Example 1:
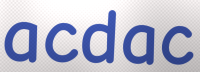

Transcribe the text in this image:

acdac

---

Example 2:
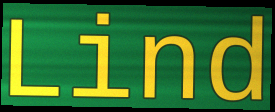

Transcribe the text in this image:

Lind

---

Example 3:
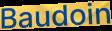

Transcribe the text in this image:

Baudoin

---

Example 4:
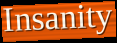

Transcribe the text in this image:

Insanity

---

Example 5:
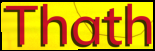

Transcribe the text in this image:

Thath